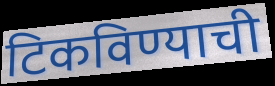
टिकविण्याची